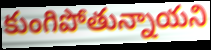
కుంగిపోతున్నాయని